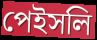
পেইসলি